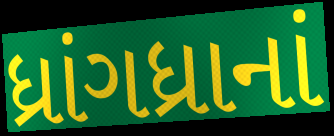
ધ્રાંગધ્રાનાં